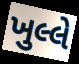
ખુલ્લે